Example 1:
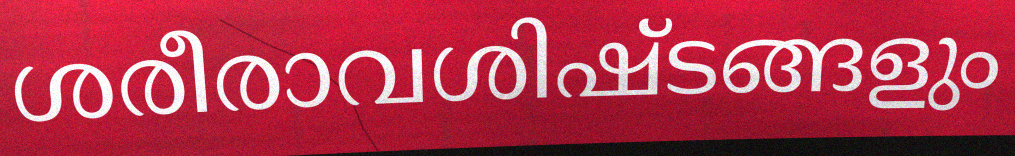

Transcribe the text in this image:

ശരീരാവശിഷ്ടങ്ങളും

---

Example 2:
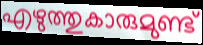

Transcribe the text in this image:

എഴുത്തുകാരുമുണ്ട്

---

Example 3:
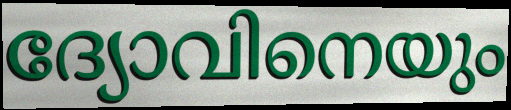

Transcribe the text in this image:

ദ്യോവിനെയും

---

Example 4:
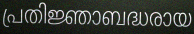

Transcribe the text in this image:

പ്രതിജ്ഞാബദ്ധരായ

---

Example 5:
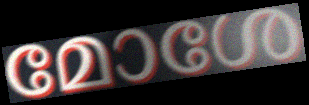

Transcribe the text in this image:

മോശേ